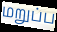
மறுப்ப